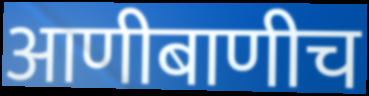
आणीबाणीच